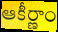
ఆకీర్ణాం